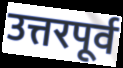
उत्तरपूर्व